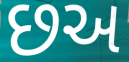
છઅ